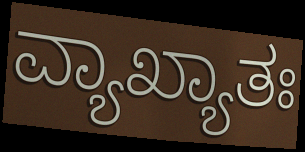
ವ್ಯಾಖ್ಯಾತಃ